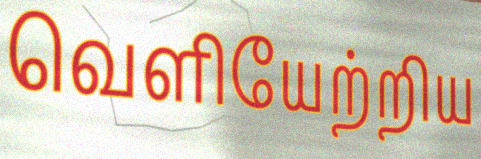
வெளியேற்றிய